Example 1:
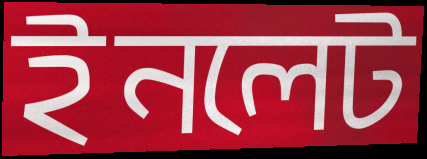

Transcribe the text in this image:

ইনলেট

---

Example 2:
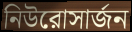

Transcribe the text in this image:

নিউরোসার্জন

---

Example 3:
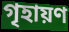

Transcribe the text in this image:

গৃহায়ণ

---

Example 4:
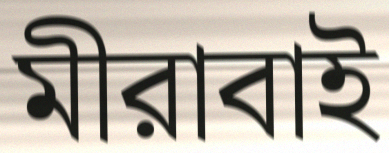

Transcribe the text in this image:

মীরাবাই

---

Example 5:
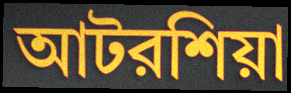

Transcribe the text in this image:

আটরশিয়া